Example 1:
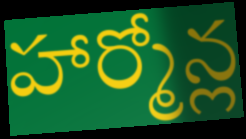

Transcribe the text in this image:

హార్మోన్ల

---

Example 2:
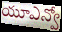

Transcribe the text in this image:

యూఎన్వో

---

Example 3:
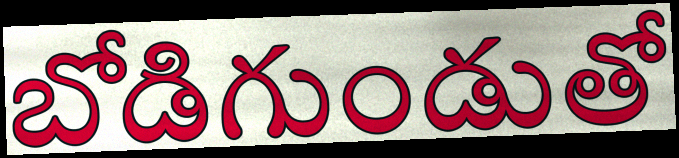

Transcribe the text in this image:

బోడిగుండుతో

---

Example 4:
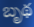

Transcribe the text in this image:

బృథ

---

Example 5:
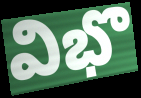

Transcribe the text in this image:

విభొ